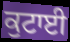
ਕੁਟਾਈ